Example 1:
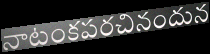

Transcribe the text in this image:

నాటంకపరచినందున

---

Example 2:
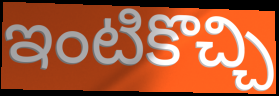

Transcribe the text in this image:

ఇంటికొచ్చి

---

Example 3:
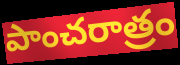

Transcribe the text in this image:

పాంచరాత్రం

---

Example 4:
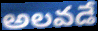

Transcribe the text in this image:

అలవడే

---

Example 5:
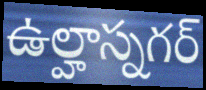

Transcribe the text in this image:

ఉల్హాస్నగర్